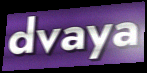
dvaya